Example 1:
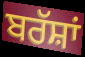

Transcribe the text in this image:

ਬਰੱਸ਼ਾਂ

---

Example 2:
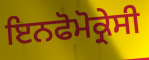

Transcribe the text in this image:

ਇਨਫੋਮੋਕ੍ਰੇਸੀ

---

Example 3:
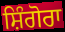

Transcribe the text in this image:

ਸ਼ਿੰਗੋਰਾ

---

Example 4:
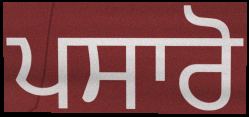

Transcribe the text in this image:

ਪਸਾਰੋ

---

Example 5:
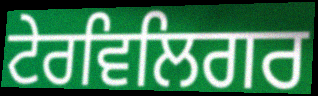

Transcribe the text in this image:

ਟੇਰਵਿਲਿਗਰ